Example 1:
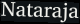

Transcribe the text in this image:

Nataraja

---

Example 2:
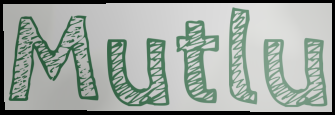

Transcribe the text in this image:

Mutlu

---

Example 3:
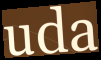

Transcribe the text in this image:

uda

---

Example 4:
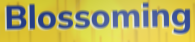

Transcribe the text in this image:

Blossoming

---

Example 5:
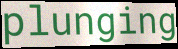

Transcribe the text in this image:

plunging